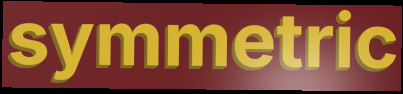
symmetric